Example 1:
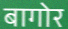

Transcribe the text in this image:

बागोर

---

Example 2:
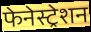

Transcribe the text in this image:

फेनेस्ट्रेशन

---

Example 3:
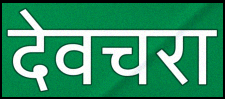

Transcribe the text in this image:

देवचरा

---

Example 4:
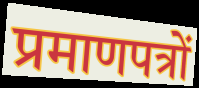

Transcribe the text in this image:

प्रमाणपत्रों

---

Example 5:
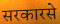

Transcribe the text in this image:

सरकारसे